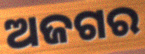
ଅଜଗର